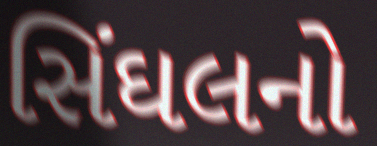
સિંઘલનો